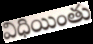
విధియింతు